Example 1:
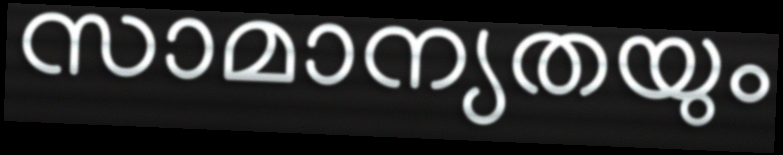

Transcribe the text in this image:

സാമാന്യതയും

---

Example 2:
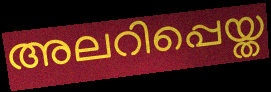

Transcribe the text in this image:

അലറിപ്പെയ്ത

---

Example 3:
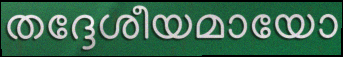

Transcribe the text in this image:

തദ്ദേശീയമായോ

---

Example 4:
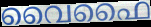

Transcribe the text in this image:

വൈഫൈ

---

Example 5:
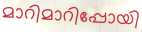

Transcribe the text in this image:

മാറിമാറിപ്പോയി